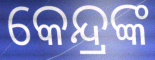
କେନ୍ଦ୍ରଙ୍କ